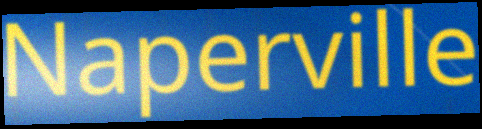
Naperville